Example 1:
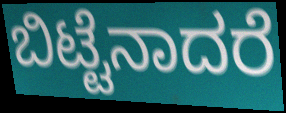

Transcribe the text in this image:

ಬಿಟ್ಟೆನಾದರೆ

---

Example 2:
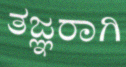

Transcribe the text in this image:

ತಜ್ಞರಾಗಿ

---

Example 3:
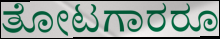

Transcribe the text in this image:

ತೋಟಗಾರರೂ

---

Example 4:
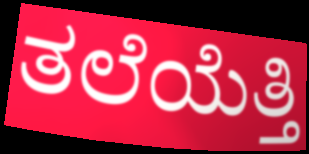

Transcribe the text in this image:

ತಲೆಯೆತ್ತಿ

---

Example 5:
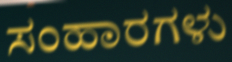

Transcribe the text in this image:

ಸಂಹಾರಗಳು